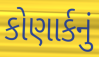
કોણાર્કનું